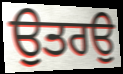
ਉਤਰਉ